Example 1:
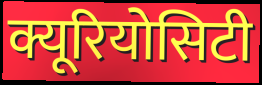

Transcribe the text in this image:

क्यूरियोसिटी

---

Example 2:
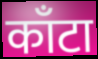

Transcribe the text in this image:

काँटा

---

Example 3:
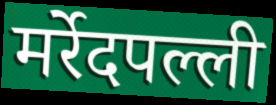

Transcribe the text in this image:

मर्रेदपल्ली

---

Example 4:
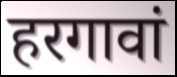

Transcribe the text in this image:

हरगावां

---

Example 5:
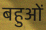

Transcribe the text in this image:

बहुओं